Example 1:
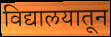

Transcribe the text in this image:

विद्यालयातून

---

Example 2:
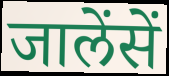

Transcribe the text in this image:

जालेंसें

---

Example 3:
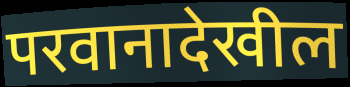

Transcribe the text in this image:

परवानादेखील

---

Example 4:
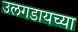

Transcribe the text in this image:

उलगडायच्या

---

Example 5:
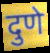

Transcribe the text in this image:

दुणे